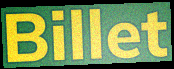
Billet